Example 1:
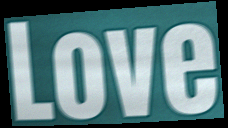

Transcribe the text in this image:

Love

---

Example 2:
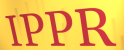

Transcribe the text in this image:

IPPR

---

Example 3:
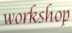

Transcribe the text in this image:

workshop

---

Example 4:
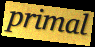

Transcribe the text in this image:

primal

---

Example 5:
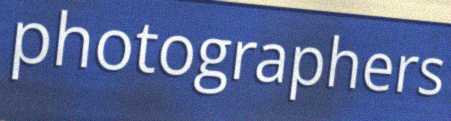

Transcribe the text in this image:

photographers